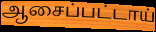
ஆசைப்பட்டாய்